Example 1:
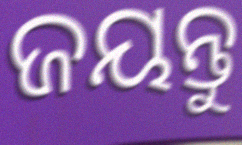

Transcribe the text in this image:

ଜୟନ୍ତୁ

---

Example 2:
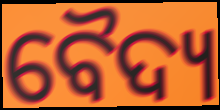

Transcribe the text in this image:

ବୈଦ୍ୟ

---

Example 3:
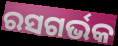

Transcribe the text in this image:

ରସଗର୍ଭକ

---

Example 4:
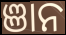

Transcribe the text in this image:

ଞାନ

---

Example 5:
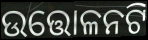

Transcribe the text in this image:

ଉତ୍ତୋଳନଟି